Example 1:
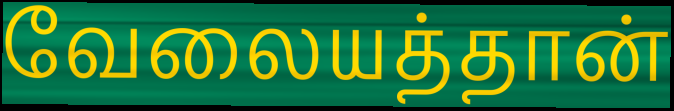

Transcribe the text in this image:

வேலையத்தான்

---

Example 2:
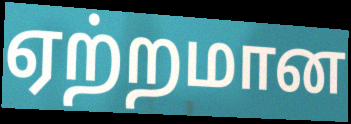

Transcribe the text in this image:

ஏற்றமான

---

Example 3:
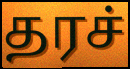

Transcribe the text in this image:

தரச்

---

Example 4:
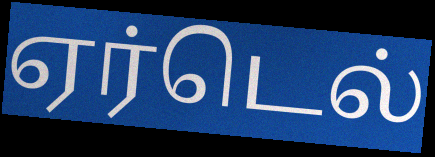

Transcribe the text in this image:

ஏர்டெல்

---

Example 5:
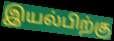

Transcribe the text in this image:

இயல்பிற்கு